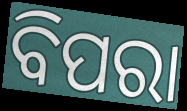
ବିପରା